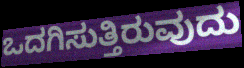
ಒದಗಿಸುತ್ತಿರುವುದು